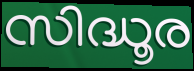
സിദ്ധൂര